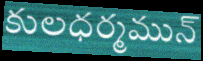
కులధర్మమున్